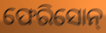
ଫେରିସୋନ୍